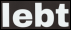
lebt